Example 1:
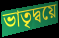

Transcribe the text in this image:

ভাতৃদ্বয়ে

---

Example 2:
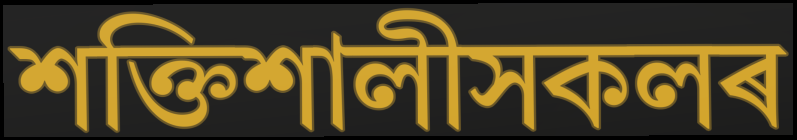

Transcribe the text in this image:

শক্তিশালীসকলৰ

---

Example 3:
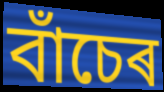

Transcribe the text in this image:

বাঁচেৰ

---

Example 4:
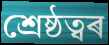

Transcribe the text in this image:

শ্ৰেষ্ঠত্বৰ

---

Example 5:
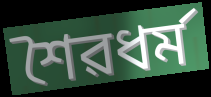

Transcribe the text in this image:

শৈৱধৰ্ম